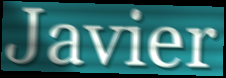
Javier